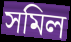
সমিল